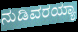
ನುಡಿವರಯ್ಯಾ